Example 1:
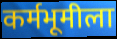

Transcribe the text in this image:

कर्मभूमीला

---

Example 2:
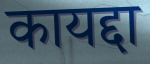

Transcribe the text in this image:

कायद्दा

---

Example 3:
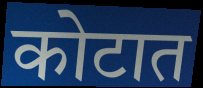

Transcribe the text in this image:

कोटात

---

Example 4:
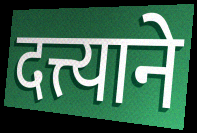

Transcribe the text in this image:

दत्त्याने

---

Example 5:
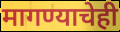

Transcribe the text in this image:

मागण्याचेही